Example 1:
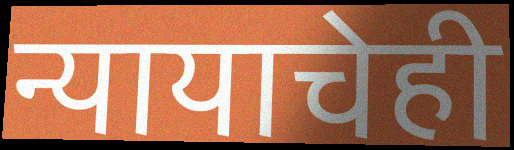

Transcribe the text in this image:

न्यायाचेही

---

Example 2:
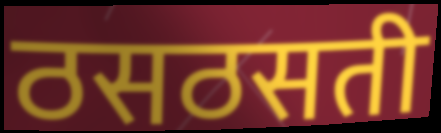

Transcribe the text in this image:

ठसठसती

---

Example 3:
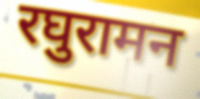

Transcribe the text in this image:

रघुरामन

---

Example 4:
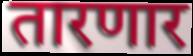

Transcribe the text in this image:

तारणार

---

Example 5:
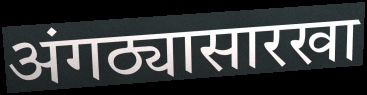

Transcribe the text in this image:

अंगठ्यासारखा